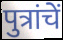
पुत्रांचें